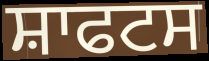
ਸ਼ਾਫਟਸ